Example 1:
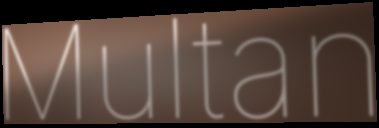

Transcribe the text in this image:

Multan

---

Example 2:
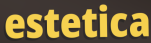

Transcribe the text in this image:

estetica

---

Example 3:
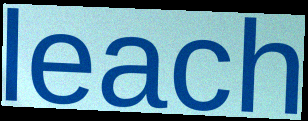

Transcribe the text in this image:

leach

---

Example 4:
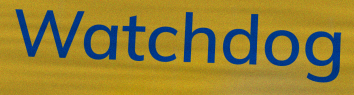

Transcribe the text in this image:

Watchdog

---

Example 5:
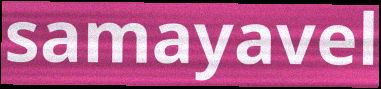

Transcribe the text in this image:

samayavel